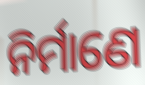
ନିର୍ମାଣେ